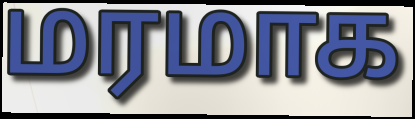
மரமாக